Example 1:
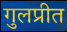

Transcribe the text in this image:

गुलप्रीत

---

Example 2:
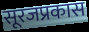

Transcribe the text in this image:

सूरजप्रकास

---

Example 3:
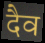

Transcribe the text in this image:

दैव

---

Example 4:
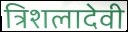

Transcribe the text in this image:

त्रिशलादेवी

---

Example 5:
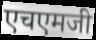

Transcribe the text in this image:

एचएमजी